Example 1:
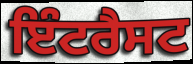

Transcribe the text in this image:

ਇੰਟਰੈਸਟ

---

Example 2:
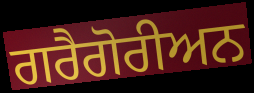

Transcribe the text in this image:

ਗਰੈਗੋਰੀਅਨ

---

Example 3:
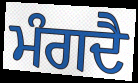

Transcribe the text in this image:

ਮੰਗਦੈ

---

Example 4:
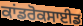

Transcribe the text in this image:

ਕਾਂਡਰੋਕਸਾਈਡ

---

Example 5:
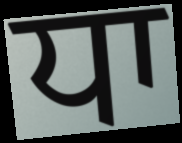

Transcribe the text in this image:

ਧਾ